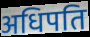
अधिपति